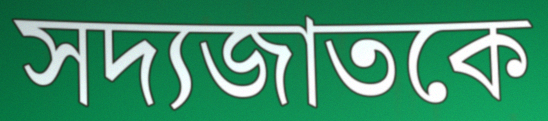
সদ্যজাতকে